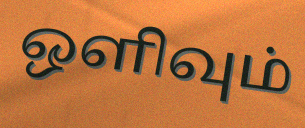
ஒளிவும்